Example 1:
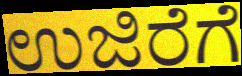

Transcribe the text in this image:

ಉಜಿರೆಗೆ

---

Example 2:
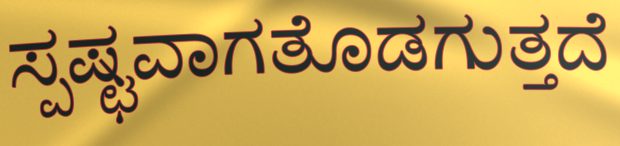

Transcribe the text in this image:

ಸ್ಪಷ್ಟವಾಗತೊಡಗುತ್ತದೆ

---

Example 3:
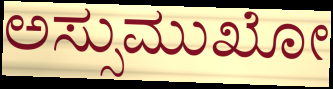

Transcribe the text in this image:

ಅಸ್ಸುಮುಖೋ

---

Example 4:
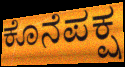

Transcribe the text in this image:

ಕೊನೆಪಕ್ಷ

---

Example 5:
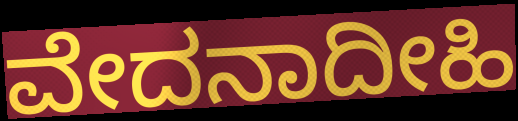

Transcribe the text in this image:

ವೇದನಾದೀಹಿ